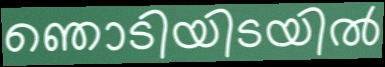
ഞൊടിയിടയിൽ